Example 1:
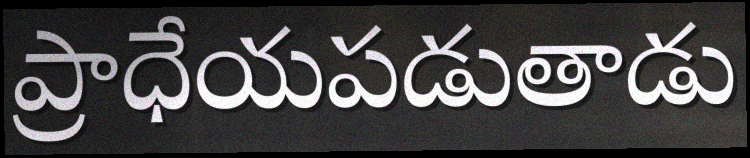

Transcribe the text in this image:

ప్రాధేయపడుతాడు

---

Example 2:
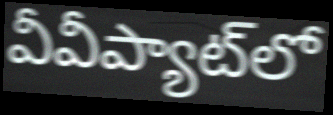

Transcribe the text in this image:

వీవీప్యాట్‌లో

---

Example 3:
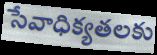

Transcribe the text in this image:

సేవాధిక్యతలకు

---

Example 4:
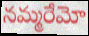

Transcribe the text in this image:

నమ్మరేమో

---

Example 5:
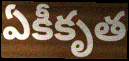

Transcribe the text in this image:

ఏకీకృత